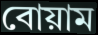
বোয়াম